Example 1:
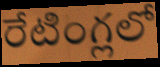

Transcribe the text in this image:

రేటింగ్లలో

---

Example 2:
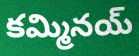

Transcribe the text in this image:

కమ్మినయ్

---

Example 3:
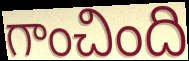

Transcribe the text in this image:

గాంచింది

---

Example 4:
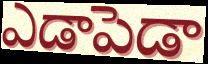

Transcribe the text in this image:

ఎడాపెడా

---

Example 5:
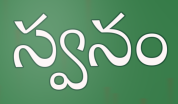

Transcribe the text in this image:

స్వనం